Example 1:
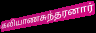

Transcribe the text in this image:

கலியாணசுந்தரனார்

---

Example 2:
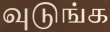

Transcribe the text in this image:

வுடுங்க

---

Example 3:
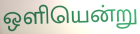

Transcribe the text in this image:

ஒளியென்று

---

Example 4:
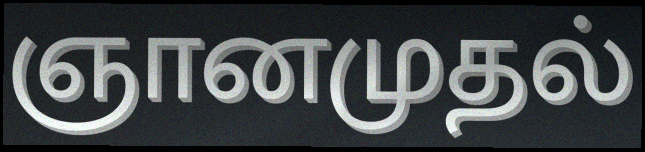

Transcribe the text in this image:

ஞானமுதல்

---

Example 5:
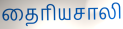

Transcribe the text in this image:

தைரியசாலி